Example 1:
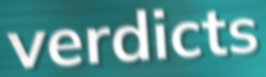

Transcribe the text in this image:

verdicts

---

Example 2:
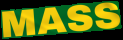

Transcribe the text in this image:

MASS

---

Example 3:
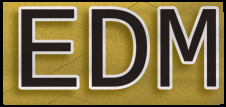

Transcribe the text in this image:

EDM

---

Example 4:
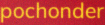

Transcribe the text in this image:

pochonder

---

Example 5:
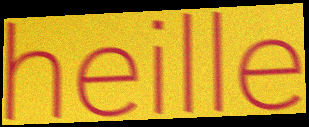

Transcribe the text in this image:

heille